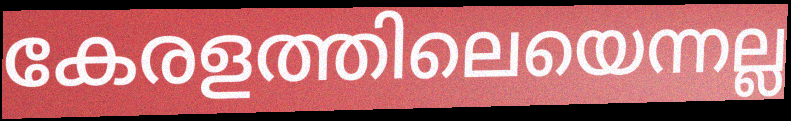
കേരളത്തിലെയെന്നല്ല